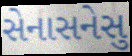
સેનાસનેસુ